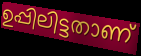
ഉപ്പിലിട്ടതാണ്